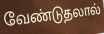
வேண்டுதலால்